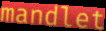
mandlet